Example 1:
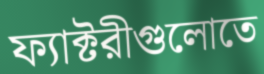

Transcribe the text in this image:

ফ্যাক্টরীগুলোতে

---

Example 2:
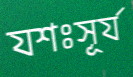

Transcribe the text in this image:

যশঃসূর্য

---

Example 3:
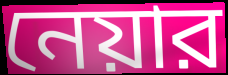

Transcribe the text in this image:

নেয়ার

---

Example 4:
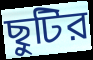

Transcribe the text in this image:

ছুটির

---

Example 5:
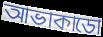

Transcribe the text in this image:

আভাকাডো